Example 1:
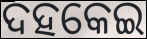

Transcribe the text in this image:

ଦହକେଇ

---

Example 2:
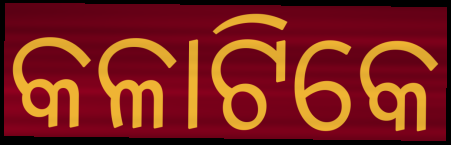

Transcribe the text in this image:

କଳାଟିକେ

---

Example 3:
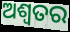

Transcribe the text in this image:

ଅଶ୍ୱତର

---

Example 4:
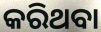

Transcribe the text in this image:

କରିଥବା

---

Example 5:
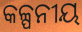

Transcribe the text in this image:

କଳ୍ପନୀୟ